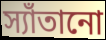
স্যাঁতানো